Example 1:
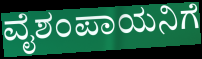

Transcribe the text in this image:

ವೈಶಂಪಾಯನಿಗೆ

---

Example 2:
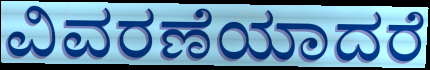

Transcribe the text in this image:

ವಿವರಣೆಯಾದರೆ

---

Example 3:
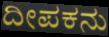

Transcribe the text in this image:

ದೀಪಕನು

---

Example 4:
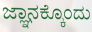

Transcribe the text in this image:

ಜ್ಞಾನಕ್ಕೊಂದು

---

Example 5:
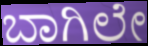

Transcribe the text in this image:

ಬಾಗಿಲೇ